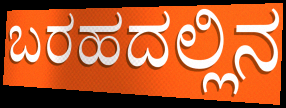
ಬರಹದಲ್ಲಿನ